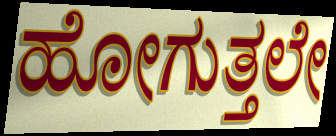
ಹೋಗುತ್ತಲೇ